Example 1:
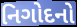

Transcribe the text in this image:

નિગોદનો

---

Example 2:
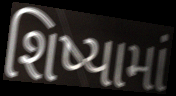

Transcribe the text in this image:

શિષ્યામાં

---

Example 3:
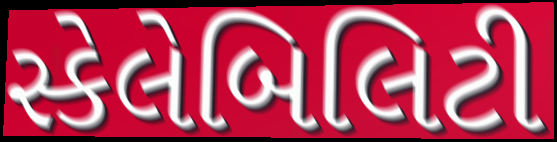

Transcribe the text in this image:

સ્કેલેબિલિટી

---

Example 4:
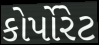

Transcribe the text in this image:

કોર્પોરેટ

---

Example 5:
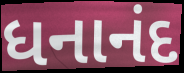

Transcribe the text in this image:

ધનાનંદ